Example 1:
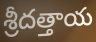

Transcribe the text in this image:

శ్రీదత్తాయ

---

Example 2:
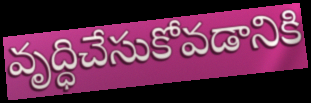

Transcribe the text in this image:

వృద్ధిచేసుకోవడానికి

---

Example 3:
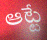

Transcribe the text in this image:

ఆట్టే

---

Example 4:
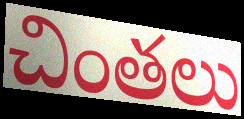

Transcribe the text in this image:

చింతలు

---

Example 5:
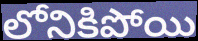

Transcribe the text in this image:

లోనికిపోయి